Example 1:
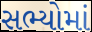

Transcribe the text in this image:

સભ્યોમાં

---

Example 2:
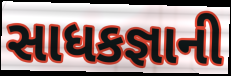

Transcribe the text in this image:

સાધકજ્ઞાની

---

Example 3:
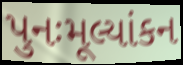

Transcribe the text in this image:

પુનઃમૂલ્યાંકન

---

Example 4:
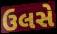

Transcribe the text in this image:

ઉલસે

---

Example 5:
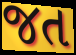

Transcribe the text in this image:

જત